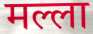
मल्ला